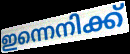
ഇന്നെനിക്ക്